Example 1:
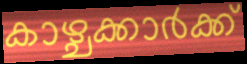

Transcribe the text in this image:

കാഴ്ചക്കാർക്ക്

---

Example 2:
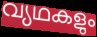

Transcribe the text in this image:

വ്യഥകളും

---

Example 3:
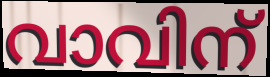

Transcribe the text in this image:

വാവിന്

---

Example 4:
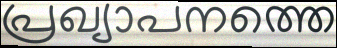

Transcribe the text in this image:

പ്രഖ്യാപനത്തെ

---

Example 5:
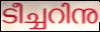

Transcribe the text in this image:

ടീച്ചറിനു